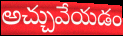
అచ్చువేయడం